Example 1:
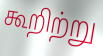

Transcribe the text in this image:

கூறிற்று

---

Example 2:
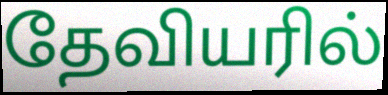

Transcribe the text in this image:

தேவியரில்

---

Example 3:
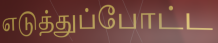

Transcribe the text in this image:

எடுத்துப்போட்ட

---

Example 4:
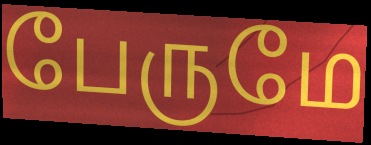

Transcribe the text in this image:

பேருமே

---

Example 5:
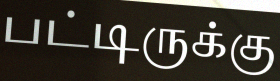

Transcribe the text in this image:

பட்டிருக்கு